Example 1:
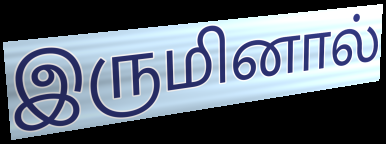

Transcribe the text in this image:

இருமினால்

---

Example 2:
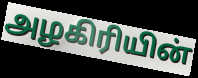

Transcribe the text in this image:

அழகிரியின்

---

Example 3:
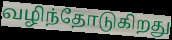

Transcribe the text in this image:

வழிந்தோடுகிறது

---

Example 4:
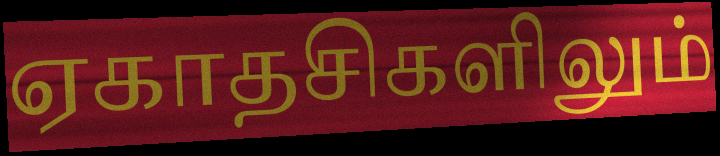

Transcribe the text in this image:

ஏகாதசிகளிலும்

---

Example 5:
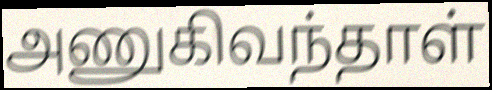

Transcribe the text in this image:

அணுகிவந்தாள்